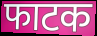
फाटक